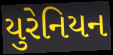
યુરેનિયન